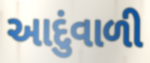
આદુંવાળી